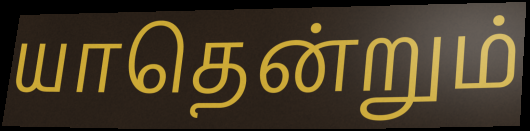
யாதென்றும்